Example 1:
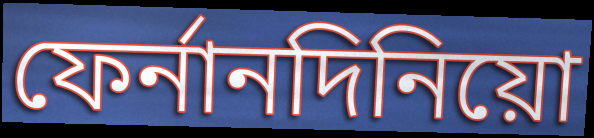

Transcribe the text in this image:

ফের্নানদিনিয়ো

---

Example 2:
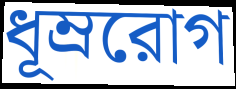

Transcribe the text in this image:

ধূম্ররোগ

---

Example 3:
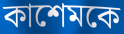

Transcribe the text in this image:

কাশেমকে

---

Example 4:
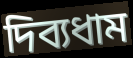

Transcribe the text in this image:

দিব্যধাম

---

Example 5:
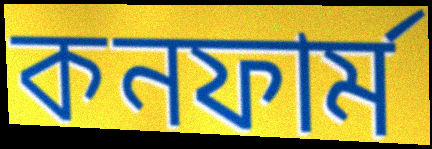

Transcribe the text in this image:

কনফার্ম